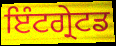
ਇੰਟਗ੍ਰੇਟਡ